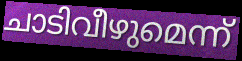
ചാടിവീഴുമെന്ന്